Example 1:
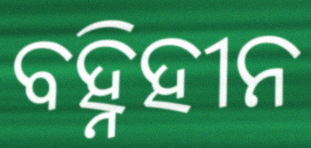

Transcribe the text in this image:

ବହ୍ନିହୀନ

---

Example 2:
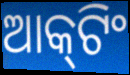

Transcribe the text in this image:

ଆକ୍‌ଟିଂ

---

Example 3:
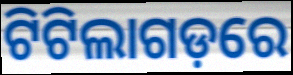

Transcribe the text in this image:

ଟିଟିଲାଗଡ଼ରେ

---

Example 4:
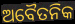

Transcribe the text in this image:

ଅବୈତନିକ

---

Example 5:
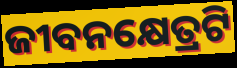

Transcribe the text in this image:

ଜୀବନକ୍ଷେତ୍ରଟି